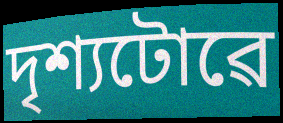
দৃশ্যটোৱে